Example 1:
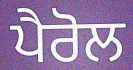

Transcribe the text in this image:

ਪੈਰੋਲ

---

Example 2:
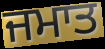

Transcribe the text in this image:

ਜਮਾਤ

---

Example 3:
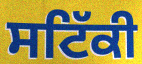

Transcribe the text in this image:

ਸਟਿੱਕੀ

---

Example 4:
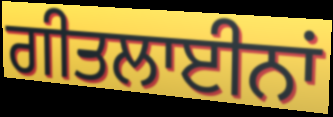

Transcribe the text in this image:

ਗੀਤਲਾਈਨਾਂ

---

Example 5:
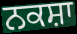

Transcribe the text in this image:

ਨਕਸ਼ਾ